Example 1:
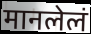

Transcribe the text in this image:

मानलेलं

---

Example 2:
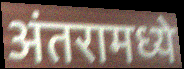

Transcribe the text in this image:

अंतरामध्ये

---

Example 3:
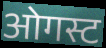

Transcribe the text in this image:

ओगस्ट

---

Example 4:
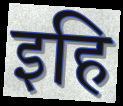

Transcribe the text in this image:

इहि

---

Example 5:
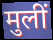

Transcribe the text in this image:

मुलीं